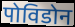
पोविडोन